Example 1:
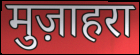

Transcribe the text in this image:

मुज़ाहरा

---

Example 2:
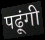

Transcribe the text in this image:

पढ़ूंगी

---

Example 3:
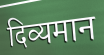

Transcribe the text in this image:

दिव्यमान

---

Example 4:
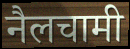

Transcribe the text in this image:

नैलचामी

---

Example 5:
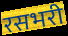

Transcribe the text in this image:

रसभरी